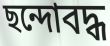
ছন্দোবদ্ধ